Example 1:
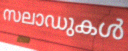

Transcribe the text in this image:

സലാഡുകൾ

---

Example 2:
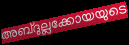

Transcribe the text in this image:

അബ്ദുല്ലക്കോയയുടെ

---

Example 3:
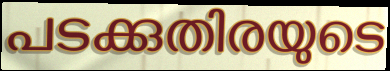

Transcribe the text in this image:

പടക്കുതിരയുടെ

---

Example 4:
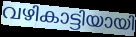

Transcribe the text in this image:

വഴികാട്ടിയായി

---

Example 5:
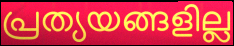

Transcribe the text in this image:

പ്രത്യയങ്ങളില്ല